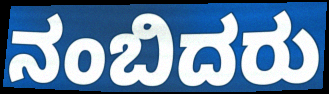
ನಂಬಿದರು